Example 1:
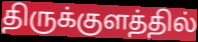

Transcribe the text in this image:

திருக்குளத்தில்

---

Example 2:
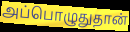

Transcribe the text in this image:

அப்பொழுதுதான்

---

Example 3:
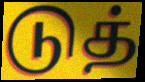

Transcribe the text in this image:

டுத்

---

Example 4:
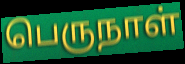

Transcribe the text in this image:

பெருநாள்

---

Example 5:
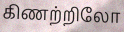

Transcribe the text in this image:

கிணற்றிலோ